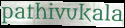
pathivukala